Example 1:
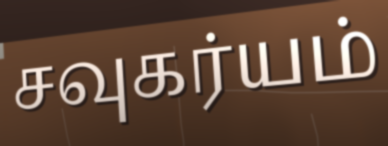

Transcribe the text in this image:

சவுகர்யம்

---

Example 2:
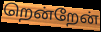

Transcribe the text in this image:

றென்றேன்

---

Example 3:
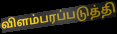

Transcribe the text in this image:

விளம்பரப்படுத்தி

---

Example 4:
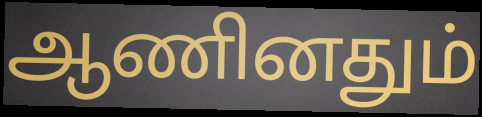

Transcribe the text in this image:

ஆணினதும்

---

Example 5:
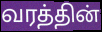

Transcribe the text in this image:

வரத்தின்